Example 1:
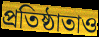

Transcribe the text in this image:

প্রতিষ্ঠাতাও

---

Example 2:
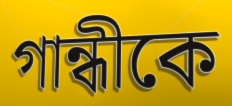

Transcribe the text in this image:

গান্ধীকে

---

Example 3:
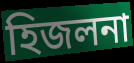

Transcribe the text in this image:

হিজলনা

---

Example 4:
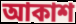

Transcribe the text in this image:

আকাশ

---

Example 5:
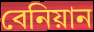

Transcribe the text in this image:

বেনিয়ান